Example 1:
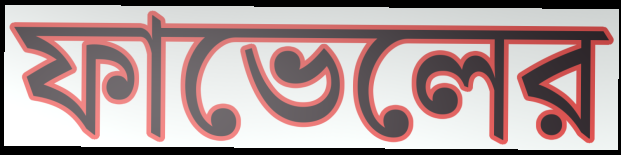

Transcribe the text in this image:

ফাভেলের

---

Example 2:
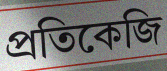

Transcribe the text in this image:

প্রতিকেজি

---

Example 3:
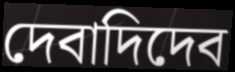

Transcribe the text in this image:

দেবাদিদেব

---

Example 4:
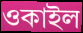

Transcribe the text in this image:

ওকাইল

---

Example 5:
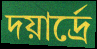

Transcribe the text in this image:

দয়ার্দ্রে